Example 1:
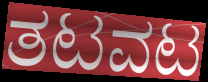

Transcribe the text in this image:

ತಟವಟ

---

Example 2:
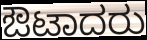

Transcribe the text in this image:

ಔಟಾದರು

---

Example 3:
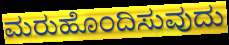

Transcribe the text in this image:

ಮರುಹೊಂದಿಸುವುದು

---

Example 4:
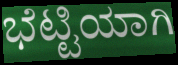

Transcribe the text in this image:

ಭೆಟ್ಟಿಯಾಗಿ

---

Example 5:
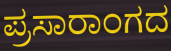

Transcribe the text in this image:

ಪ್ರಸಾರಾಂಗದ